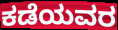
ಕಡೆಯವರ